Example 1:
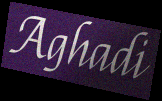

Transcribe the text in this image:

Aghadi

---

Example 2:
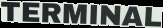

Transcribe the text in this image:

TERMINAL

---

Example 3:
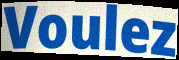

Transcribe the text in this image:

Voulez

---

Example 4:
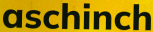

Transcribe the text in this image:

aschinch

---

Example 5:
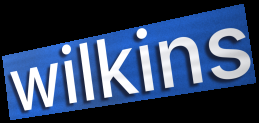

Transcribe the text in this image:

wilkins